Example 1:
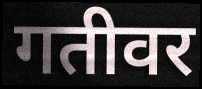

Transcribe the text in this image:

गतीवर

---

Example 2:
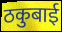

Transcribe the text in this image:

ठकुबाई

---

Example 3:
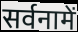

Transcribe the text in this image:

सर्वनामें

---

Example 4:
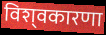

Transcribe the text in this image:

विश्वकारणा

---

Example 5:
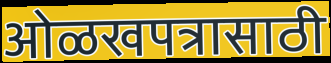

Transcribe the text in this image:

ओळखपत्रासाठी